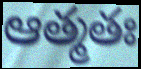
ఆత్మతః